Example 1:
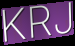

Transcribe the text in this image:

KRJ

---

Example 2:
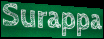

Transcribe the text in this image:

Surappa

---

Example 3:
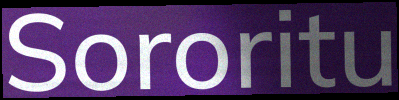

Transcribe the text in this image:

Sororitu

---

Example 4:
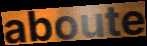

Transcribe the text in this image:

aboute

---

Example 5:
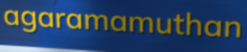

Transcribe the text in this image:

agaramamuthan